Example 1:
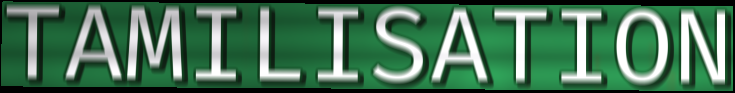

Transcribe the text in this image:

TAMILISATION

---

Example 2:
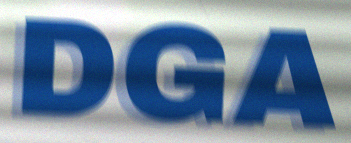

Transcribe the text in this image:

DGA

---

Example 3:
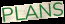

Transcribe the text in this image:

PLANS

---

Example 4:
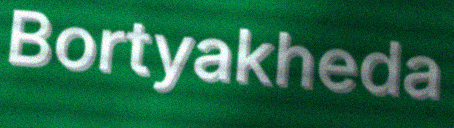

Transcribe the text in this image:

Bortyakheda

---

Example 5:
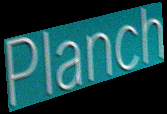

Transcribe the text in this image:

Planch